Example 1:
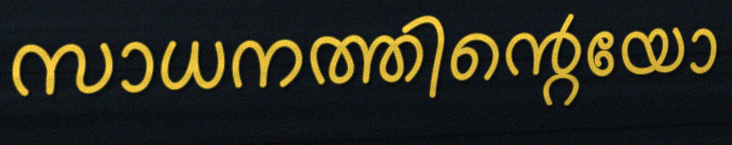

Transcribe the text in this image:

സാധനത്തിന്റെയോ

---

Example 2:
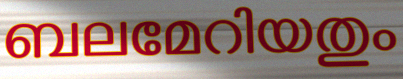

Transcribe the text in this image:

ബലമേറിയതും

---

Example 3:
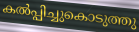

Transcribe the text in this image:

കൽപ്പിച്ചുകൊടുത്തു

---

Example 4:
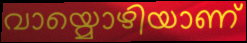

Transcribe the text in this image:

വായ്മൊഴിയാണ്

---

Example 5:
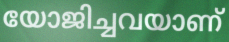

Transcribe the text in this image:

യോജിച്ചവയാണ്